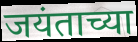
जयंताच्या